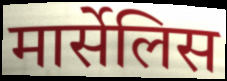
मार्सेलिस